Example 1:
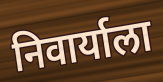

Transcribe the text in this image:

निवार्याला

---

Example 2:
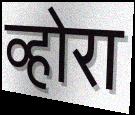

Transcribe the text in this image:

व्होरा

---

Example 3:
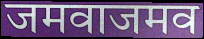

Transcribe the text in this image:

जमवाजमव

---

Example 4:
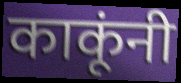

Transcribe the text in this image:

काकूंनी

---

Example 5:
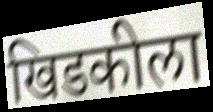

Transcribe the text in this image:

खिडकीला